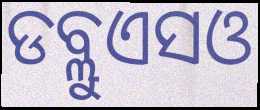
ଡବ୍ଲୁଏସଓ